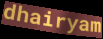
dhairyam